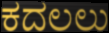
ಕದಲಲು